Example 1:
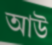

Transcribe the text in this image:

আউ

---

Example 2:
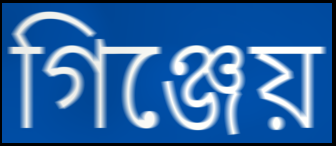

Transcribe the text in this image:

গিঞ্জেয়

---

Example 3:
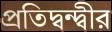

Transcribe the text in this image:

প্রতিদ্বন্দ্বীর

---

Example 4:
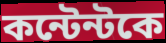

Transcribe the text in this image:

কন্টেন্টকে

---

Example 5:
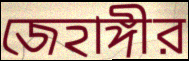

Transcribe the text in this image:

জেহাঙ্গীর